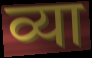
व्‍या